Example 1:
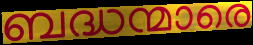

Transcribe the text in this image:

ബദ്ധന്മാരെ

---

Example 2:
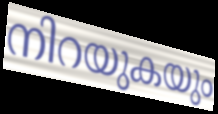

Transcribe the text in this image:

നിറയുകയും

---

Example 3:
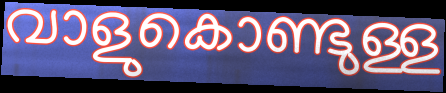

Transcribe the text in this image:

വാളുകൊണ്ടുള്ള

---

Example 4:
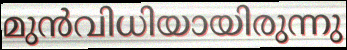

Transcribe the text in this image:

മുൻവിധിയായിരുന്നു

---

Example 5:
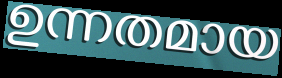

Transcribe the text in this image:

ഉന്നതമായ